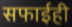
सफाईही